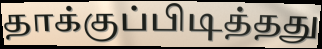
தாக்குப்பிடித்தது